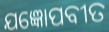
ଯଜ୍ଞୋପବୀତ